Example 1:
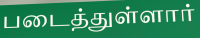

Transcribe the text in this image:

படைத்துள்ளார்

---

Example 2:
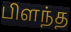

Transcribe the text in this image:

பிளந்த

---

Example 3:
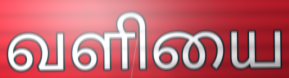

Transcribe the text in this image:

வளியை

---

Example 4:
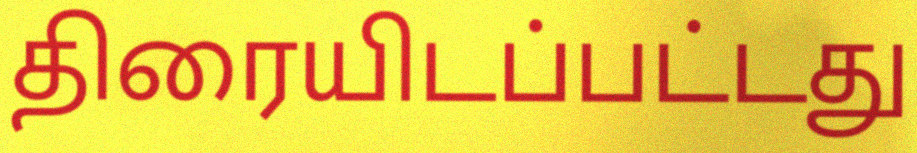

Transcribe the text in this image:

திரையிடப்பட்டது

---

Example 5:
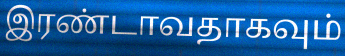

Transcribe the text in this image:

இரண்டாவதாகவும்